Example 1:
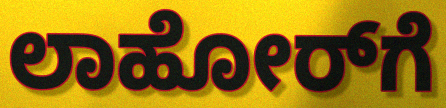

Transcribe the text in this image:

ಲಾಹೋರ್‌ಗೆ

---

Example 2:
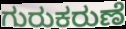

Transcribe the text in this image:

ಗುರುಕರುಣೆ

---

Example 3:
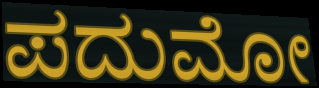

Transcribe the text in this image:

ಪದುಮೋ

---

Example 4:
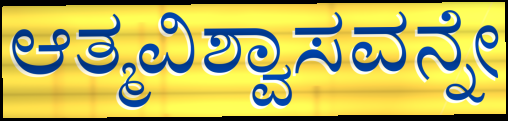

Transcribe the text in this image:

ಆತ್ಮವಿಶ್ವಾಸವನ್ನೇ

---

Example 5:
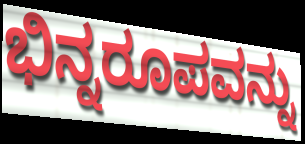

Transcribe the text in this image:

ಭಿನ್ನರೂಪವನ್ನು